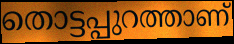
തൊട്ടപ്പുറത്താണ്